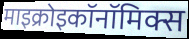
माइक्रोइकॉनॉमिक्स